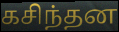
கசிந்தன